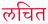
लचित